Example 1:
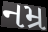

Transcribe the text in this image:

નમ્ર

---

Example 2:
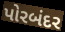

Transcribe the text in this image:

પોરબંદર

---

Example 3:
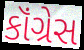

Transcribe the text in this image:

કૉંગ્રેસ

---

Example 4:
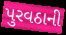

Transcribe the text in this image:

પુરવઠાની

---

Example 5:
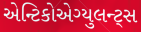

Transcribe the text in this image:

એન્ટિકોએગ્યુલન્ટ્સ